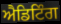
ਐਡਿਟਿੰਗ